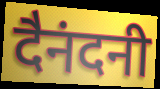
दैनंदनी